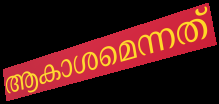
ആകാശമെന്നത്